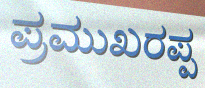
ಪ್ರಮುಖರಪ್ಪ